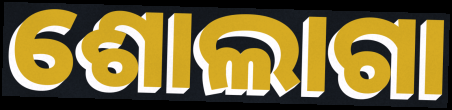
ଶୋଲାଗା